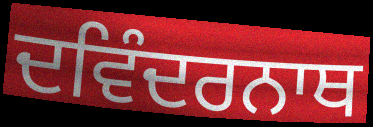
ਦਵਿੰਦਰਨਾਥ